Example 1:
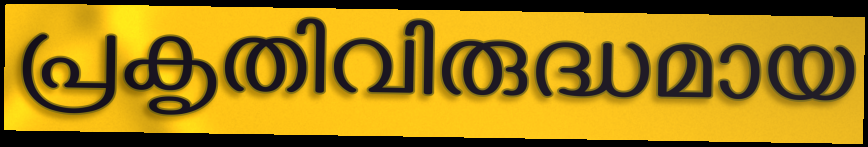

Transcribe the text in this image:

പ്രകൃതിവിരുദ്ധമായ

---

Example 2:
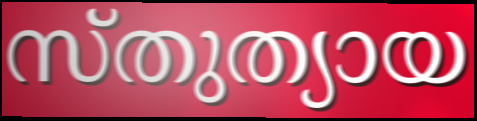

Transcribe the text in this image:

സ്തുത്യായ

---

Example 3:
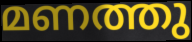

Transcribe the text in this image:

മണത്തു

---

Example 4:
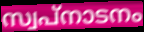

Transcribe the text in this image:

സ്വപ്നാടനം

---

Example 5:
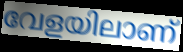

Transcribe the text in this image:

വേളയിലാണ്